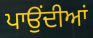
ਪਾਉਂਦੀਆਂ